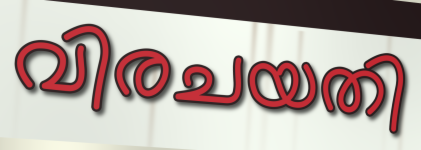
വിരചയതി